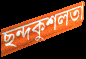
ছন্দকুশলতা